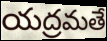
యద్రమతే